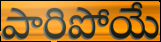
పారిపోయే